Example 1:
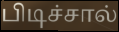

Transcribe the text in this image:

பிடிச்சால்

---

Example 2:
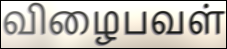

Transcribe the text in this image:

விழைபவள்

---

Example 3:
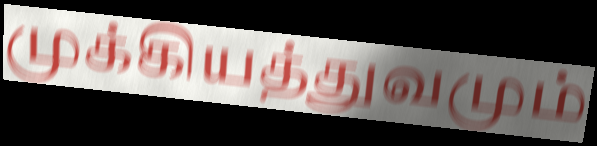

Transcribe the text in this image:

முக்கியத்துவமும்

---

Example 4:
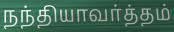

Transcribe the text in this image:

நந்தியாவர்த்தம்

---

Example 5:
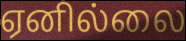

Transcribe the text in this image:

ஏனில்லை